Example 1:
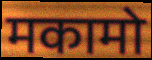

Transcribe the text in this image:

मकामो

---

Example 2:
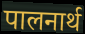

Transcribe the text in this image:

पालनार्थ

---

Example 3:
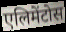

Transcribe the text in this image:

एलिमेंटोस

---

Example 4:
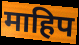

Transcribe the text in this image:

माहिप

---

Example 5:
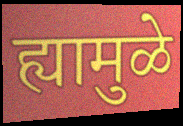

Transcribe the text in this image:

ह्यामुळे